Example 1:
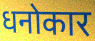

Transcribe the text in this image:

धनोकार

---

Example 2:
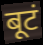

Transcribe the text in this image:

बूटं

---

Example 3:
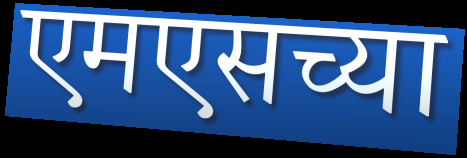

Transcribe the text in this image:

एमएसच्या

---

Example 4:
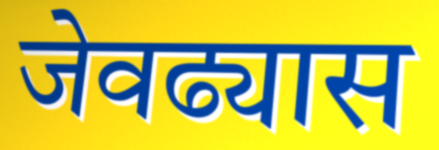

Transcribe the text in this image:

जेवढ्यास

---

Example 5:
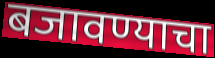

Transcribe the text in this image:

बजावण्याचा